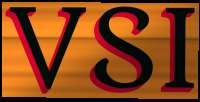
VSI